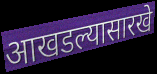
आखडल्यासारखे